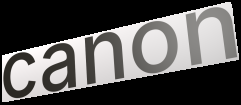
canon